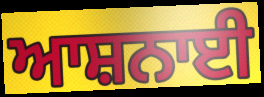
ਆਸ਼ਨਾਈ